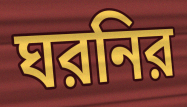
ঘরনির